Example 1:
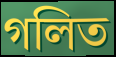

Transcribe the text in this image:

গলিত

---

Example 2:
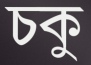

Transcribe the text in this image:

চকু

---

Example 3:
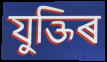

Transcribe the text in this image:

যুক্তিৰ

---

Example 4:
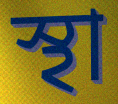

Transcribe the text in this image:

স্থা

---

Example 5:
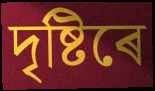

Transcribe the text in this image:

দৃষ্টিৰে